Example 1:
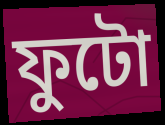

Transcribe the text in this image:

ফুটো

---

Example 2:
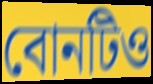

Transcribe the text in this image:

বোনটিও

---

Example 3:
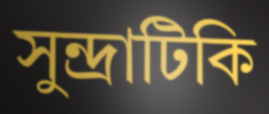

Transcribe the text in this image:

সুন্দ্রাটিকি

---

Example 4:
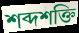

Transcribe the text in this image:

শব্দশক্তি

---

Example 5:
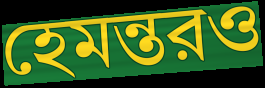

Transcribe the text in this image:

হেমন্তরও